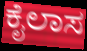
ಕೈಲಾಸ